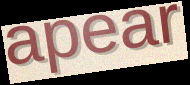
apear